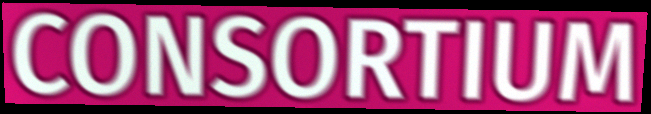
CONSORTIUM